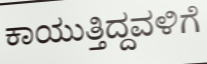
ಕಾಯುತ್ತಿದ್ದವಳಿಗೆ